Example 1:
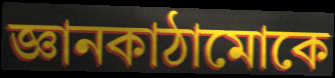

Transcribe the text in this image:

জ্ঞানকাঠামোকে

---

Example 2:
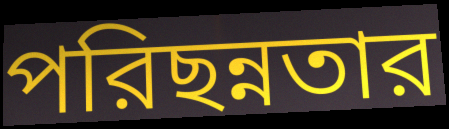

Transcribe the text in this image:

পরিছন্নতার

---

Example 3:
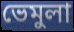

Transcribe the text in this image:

ভেমুলা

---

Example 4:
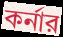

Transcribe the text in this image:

কর্নার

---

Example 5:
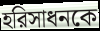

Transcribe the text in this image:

হরিসাধনকে